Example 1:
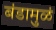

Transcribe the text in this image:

बंडामुळं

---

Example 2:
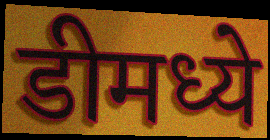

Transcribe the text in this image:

डीमध्ये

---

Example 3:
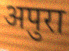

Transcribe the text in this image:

अपुरा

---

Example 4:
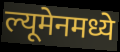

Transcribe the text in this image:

ल्यूमेनमध्ये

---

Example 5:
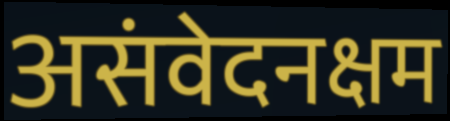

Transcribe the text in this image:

असंवेदनक्षम